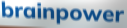
brainpower